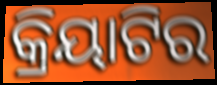
କ୍ରିୟାଟିର